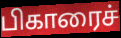
பிகாரைச்